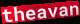
theavan